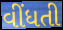
વીંધતી